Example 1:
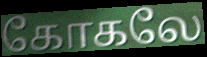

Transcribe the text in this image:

கோகலே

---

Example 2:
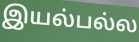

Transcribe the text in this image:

இயல்பல்ல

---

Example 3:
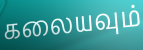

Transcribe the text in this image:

கலையவும்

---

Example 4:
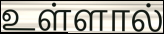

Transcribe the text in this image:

உள்ளால்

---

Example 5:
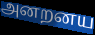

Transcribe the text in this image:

அனறனய